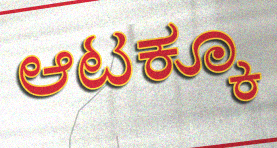
ಆಟಕ್ಕೂ